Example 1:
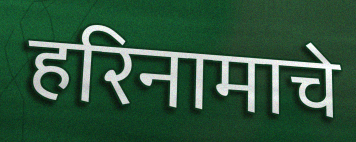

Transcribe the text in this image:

हरिनामाचे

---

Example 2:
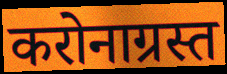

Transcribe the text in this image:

करोनाग्रस्त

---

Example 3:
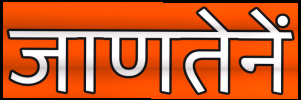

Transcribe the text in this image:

जाणतेनें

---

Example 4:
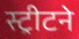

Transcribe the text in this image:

स्ट्रीटने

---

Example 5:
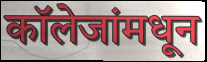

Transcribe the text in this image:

कॉलेजांमधून